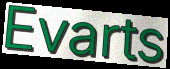
Evarts